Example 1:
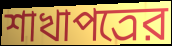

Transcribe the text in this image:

শাখাপত্রের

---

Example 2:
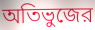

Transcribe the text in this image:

অতিভুজের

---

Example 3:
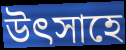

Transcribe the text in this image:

উত্‍সাহে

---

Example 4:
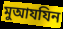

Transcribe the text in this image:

মুআযযিন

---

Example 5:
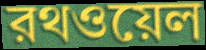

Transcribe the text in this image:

রথওয়েল